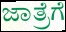
ಜಾತ್ರೆಗೆ